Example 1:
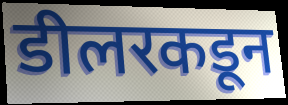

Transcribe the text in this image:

डीलरकडून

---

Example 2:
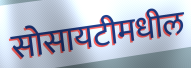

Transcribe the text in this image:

सोसायटीमधील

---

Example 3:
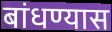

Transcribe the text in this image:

बांधण्यास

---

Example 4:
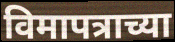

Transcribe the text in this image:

विमापत्राच्या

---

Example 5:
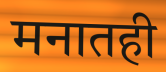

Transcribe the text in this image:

मनातही